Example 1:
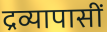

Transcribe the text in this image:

द्रव्यापासीं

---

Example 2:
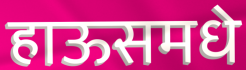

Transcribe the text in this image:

हाऊसमधे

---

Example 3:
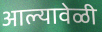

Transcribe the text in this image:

आल्यावेळी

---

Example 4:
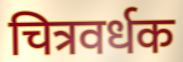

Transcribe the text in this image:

चित्रवर्धक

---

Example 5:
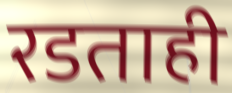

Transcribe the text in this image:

रडताही